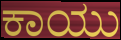
ಕಾಯು